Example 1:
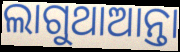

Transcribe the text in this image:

ଲାଗୁଥାଆନ୍ତା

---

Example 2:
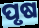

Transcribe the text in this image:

ପୃଷ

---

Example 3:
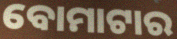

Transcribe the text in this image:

ବୋମାଟାର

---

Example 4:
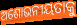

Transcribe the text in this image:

ଅଶୋଭନୀୟତାକୁ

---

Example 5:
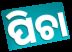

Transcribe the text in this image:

ପିଚା